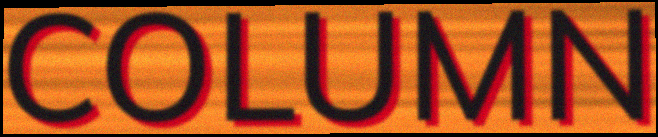
COLUMN